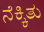
ನೆಕ್ಕಿತು